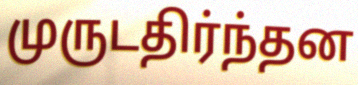
முருடதிர்ந்தன